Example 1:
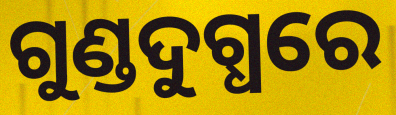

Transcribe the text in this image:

ଗୁଣ୍ଡଦୁଗ୍ଧରେ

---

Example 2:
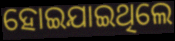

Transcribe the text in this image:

ହୋଇଯାଇଥିଲେ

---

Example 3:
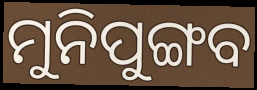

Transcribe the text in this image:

ମୁନିପୁଙ୍ଗବ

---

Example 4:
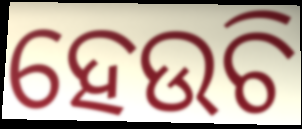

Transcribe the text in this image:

ହେଉଚି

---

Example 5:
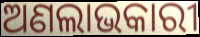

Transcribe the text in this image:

ଅଣଲାଭକାରୀ